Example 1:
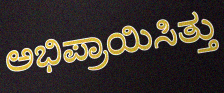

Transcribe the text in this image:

ಅಭಿಪ್ರಾಯಿಸಿತ್ತು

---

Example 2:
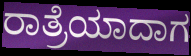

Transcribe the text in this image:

ರಾತ್ರೆಯಾದಾಗ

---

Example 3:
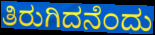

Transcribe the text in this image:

ತಿರುಗಿದನೆಂದು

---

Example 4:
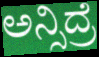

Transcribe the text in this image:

ಅನ್ಸಿದ್ರೆ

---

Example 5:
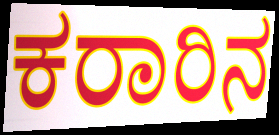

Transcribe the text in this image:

ಕರಾರಿನ